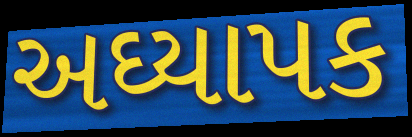
અઘ્યાપક